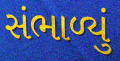
સંભાળ્યું